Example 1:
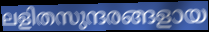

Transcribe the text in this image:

ലളിതസുന്ദരങ്ങളായ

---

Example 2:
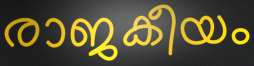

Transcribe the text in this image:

രാജകീയം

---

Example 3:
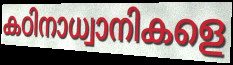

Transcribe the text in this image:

കഠിനാധ്വാനികളെ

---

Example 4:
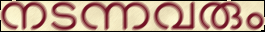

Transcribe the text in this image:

നടന്നവരും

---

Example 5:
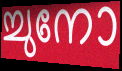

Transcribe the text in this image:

ച്ചുനോ